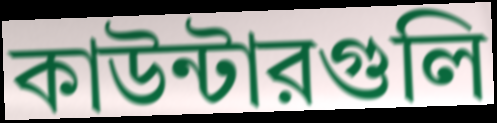
কাউন্টারগুলি